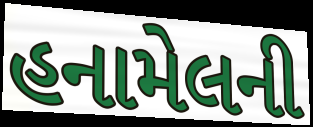
હનામેલની